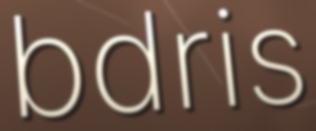
bdris